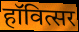
हॉवित्सर